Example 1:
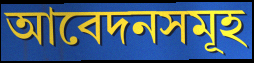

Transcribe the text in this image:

আবেদনসমূহ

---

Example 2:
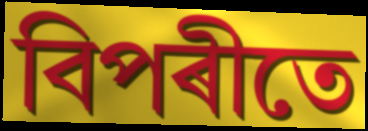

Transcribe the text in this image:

বিপৰীতে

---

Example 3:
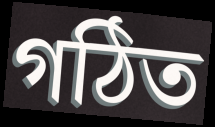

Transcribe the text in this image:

গঠিত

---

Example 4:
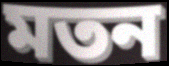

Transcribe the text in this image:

মতন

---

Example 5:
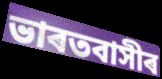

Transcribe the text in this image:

ভাৰতবাসীৰ